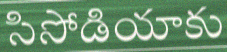
సిసోడియాకు